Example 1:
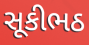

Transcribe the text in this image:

સૂકીભઠ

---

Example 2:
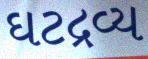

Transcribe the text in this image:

ઘટદ્રવ્ય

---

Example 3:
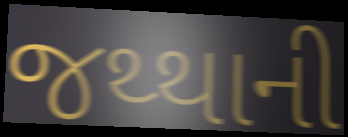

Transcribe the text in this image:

જથ્થાની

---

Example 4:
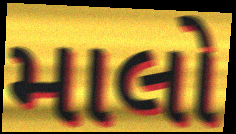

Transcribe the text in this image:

માલો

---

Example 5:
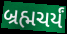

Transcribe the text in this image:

બ્રહ્મચર્યં